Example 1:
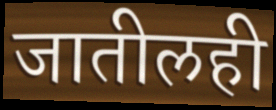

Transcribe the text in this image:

जातीलही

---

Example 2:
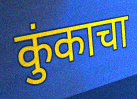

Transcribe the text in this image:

कुंकाचा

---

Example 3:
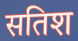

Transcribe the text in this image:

सतिश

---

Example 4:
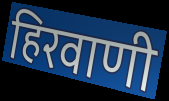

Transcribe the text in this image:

हिरवाणी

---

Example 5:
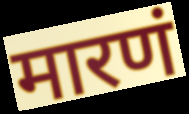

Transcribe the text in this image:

मारणं